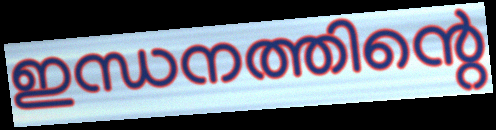
ഇന്ധനത്തിന്റെ